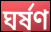
ঘর্ষণ